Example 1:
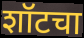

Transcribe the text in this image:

शॉटचा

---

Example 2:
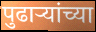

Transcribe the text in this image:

पुढार्‍यांच्या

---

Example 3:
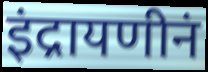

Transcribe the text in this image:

इंद्रायणीनं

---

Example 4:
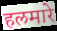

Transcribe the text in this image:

हलमारे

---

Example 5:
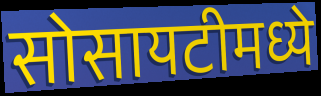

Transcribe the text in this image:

सोसायटीमध्ये